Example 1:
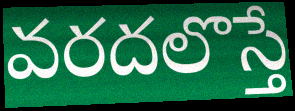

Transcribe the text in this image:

వరదలొస్తే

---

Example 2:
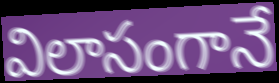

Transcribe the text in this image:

విలాసంగానే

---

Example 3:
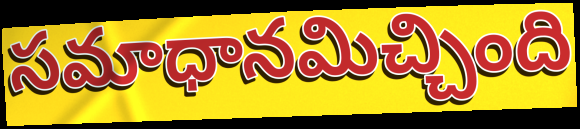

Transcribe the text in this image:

సమాధానమిచ్చింది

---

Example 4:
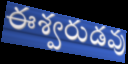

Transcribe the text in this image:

ఈశ్వరుడవు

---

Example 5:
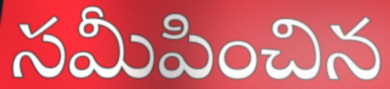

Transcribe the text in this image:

సమీపించిన